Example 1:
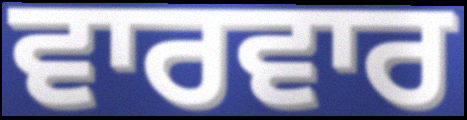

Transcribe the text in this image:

ਵਾਰਵਾਰ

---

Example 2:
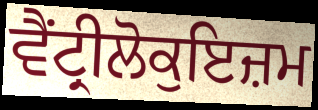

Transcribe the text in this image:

ਵੈਂਟ੍ਰੀਲੋਕੁਇਜ਼ਮ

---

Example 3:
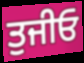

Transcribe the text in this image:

ਤੁਜੀਓ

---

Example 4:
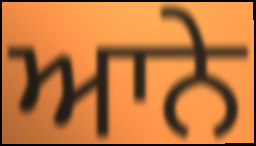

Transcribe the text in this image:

ਆਨੇ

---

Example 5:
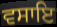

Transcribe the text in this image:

ਵਸਾਇ